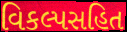
વિકલ્પસહિત